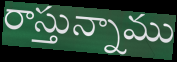
రాస్తున్నాము